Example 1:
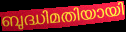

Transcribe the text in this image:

ബുദ്ധിമതിയായി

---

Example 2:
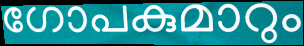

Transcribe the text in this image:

ഗോപകുമാറും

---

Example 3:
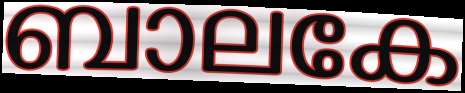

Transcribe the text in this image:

ബാലകേ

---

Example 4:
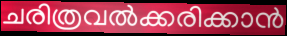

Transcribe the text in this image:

ചരിത്രവൽക്കരിക്കാൻ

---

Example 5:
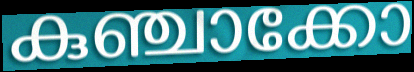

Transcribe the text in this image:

കുഞ്ചാക്കോ